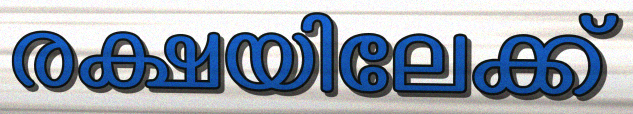
രക്ഷയിലേക്ക്